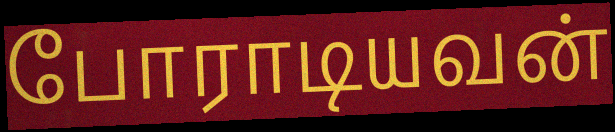
போராடியவன்